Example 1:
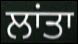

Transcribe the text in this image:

ਲਾਂਤਾ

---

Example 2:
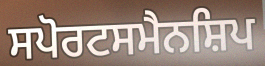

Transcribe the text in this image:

ਸਪੋਰਟਸਮੈਨਸ਼ਿਪ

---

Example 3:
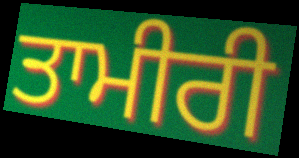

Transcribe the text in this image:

ਤਾਮੀਰੀ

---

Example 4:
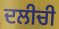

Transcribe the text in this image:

ਦਲੀਚੀ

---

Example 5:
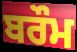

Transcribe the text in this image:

ਬਰੌਮ